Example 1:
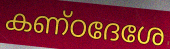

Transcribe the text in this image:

കണ്ഠദേശേ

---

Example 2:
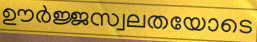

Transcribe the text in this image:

ഊർജ്ജസ്വലതയോടെ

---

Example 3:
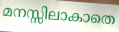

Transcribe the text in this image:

മനസ്സിലാകാതെ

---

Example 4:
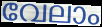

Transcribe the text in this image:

വേലാം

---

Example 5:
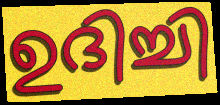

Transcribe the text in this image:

ഉദിച്ചി